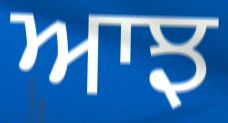
ਆਝ